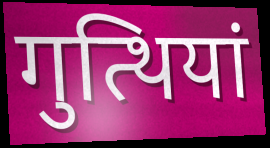
गुत्थियां